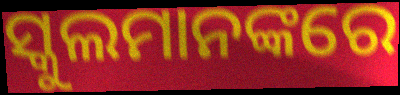
ସ୍କୁଲମାନଙ୍କରେ